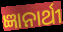
ଜ୍ଞାନାର୍ଥୀ